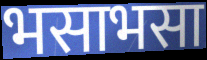
भसाभसा